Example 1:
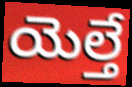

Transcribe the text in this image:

యెల్తే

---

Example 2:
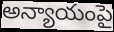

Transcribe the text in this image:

అన్యాయంపై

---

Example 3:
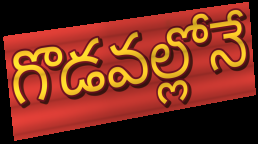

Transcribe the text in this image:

గొడవల్లోనే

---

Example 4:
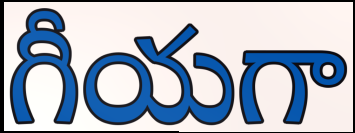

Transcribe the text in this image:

గీయగా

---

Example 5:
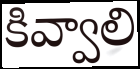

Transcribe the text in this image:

కివ్వాలి